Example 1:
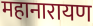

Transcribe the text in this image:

महानारायण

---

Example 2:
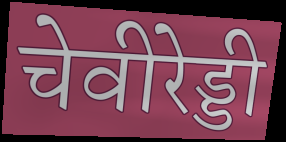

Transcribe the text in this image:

चेवीरेड्डी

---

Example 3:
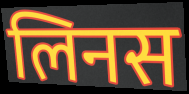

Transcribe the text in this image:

लिनस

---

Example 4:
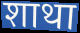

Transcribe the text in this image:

शाथा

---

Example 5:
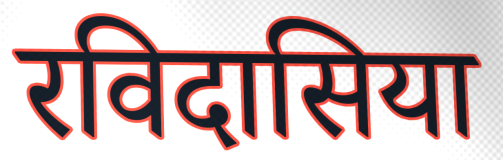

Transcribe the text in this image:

रविदासिया